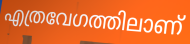
എത്രവേഗത്തിലാണ്